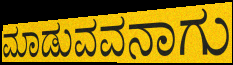
ಮಾಡುವವನಾಗು